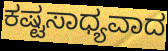
ಕಷ್ಟಸಾಧ್ಯವಾದ